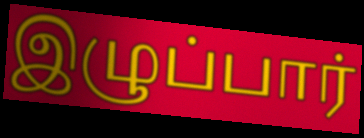
இழுப்பார்